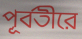
পূর্বতীরে